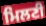
ਮਿਲਣੀ